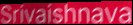
Srivaishnava